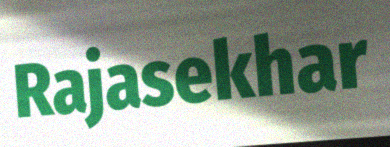
Rajasekhar